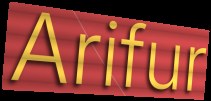
Arifur